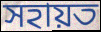
সহায়ত